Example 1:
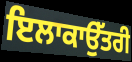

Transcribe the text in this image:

ਇਲਾਕਾਉੱਤਰੀ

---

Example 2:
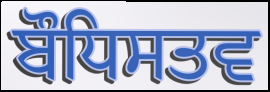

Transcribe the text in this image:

ਬੌਧਿਸਤਵ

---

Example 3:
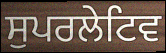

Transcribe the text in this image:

ਸੁਪਰਲੇਟਿਵ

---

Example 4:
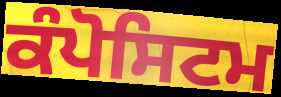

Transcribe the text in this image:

ਕੰਪੋਸਿਟਮ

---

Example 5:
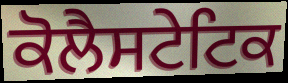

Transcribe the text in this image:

ਕੋਲੈਸਟੇਟਿਕ